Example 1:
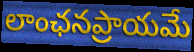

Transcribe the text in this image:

లాంఛనప్రాయమే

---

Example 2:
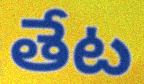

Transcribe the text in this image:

తేట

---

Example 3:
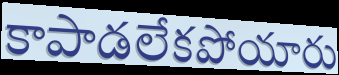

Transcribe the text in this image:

కాపాడలేకపోయారు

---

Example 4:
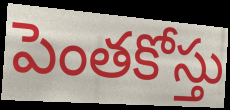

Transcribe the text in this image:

పెంతకోస్తు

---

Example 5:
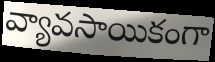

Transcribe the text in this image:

వ్యావసాయికంగా